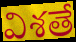
విశతే